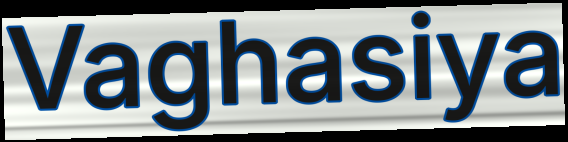
Vaghasiya